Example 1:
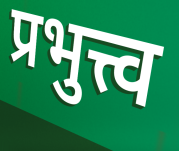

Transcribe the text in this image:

प्रभुत्त्व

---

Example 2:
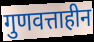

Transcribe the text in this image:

गुणवत्ताहीन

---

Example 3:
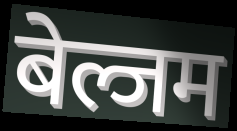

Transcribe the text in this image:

बेल्जम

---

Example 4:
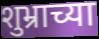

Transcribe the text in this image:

शुभ्राच्या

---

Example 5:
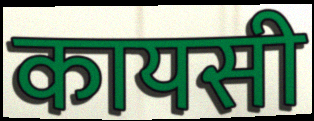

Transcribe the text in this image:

कायसी